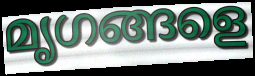
മൃഗങ്ങളെ